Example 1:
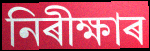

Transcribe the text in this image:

নিৰীক্ষাৰ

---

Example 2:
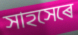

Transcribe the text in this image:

সাহসেৰে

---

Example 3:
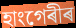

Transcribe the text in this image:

হাংগেৰীৰ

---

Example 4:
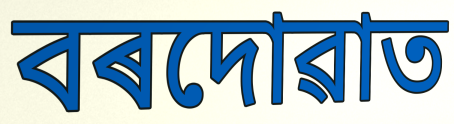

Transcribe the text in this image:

বৰদোৱাত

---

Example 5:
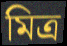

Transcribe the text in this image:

মিত্ৰ